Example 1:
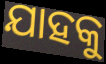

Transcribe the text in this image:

ଯାହକୁ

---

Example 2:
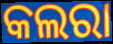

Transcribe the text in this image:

କଲରା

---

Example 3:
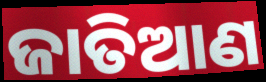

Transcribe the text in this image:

ଜାତିଆଣ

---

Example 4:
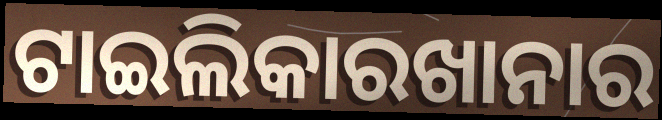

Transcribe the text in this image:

ଟାଇଲିକାରଖାନାର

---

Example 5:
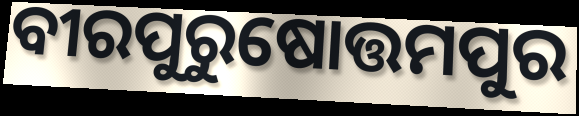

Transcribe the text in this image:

ବୀରପୁରୁଷୋତ୍ତମପୁର